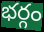
భర్గం